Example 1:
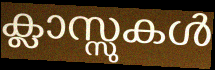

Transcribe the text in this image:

ക്ലാസ്സുകൾ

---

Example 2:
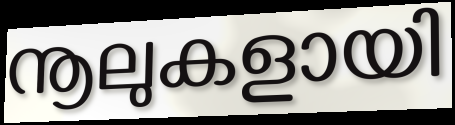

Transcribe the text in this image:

നൂലുകളായി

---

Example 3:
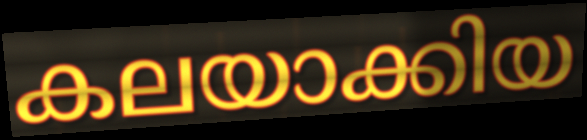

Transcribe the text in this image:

കലയാക്കിയ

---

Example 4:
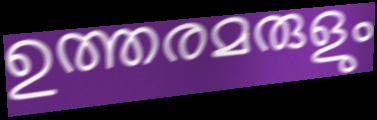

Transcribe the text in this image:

ഉത്തരമരുളും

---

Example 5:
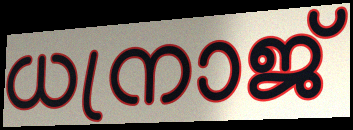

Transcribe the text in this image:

ധന്രാജ്